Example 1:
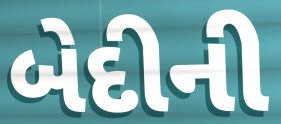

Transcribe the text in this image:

બેદીની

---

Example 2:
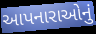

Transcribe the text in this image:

આપનારાઓનું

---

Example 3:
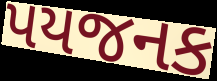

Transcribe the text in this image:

પયજનક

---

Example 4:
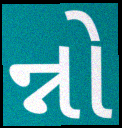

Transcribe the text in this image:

ન્નો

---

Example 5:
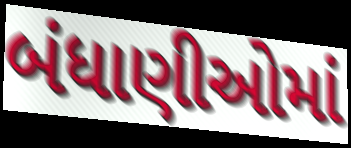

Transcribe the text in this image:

બંધાણીઓમાં